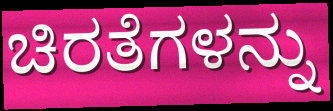
ಚಿರತೆಗಳನ್ನು